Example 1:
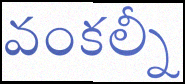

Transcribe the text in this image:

వంకల్నీ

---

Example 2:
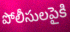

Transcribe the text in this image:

పోలీసులపైకి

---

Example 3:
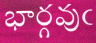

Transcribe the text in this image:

భార్గవుఁ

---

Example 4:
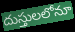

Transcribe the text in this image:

దుస్తులలోనూ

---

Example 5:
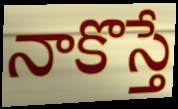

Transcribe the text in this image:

నాకొస్తే